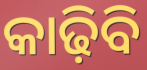
କାଢ଼ିବି